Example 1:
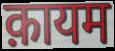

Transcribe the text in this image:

क़ायम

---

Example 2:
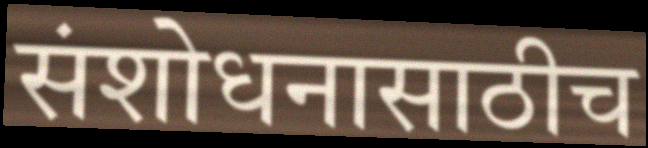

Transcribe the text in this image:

संशोधनासाठीच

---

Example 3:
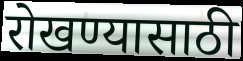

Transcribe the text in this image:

रोखण्यासाठी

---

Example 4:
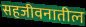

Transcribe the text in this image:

सहजीवनातील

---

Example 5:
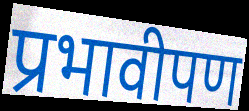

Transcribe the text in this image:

प्रभावीपण